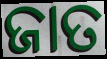
ଜାତ